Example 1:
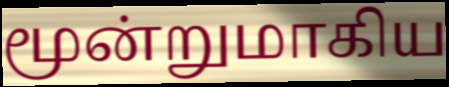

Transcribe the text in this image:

மூன்றுமாகிய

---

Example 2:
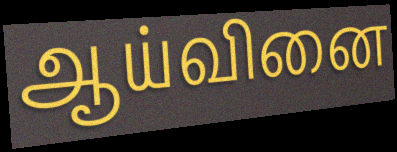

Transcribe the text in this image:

ஆய்வினை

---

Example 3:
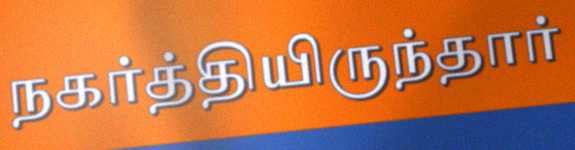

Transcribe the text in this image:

நகர்த்தியிருந்தார்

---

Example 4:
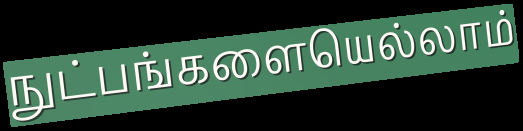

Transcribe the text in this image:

நுட்பங்களையெல்லாம்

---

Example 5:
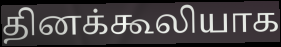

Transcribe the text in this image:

தினக்கூலியாக